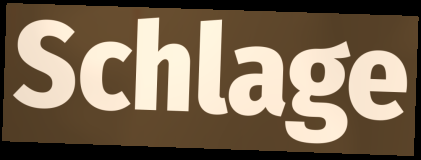
Schlage